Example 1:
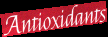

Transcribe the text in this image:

Antioxidants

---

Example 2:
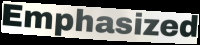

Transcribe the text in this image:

Emphasized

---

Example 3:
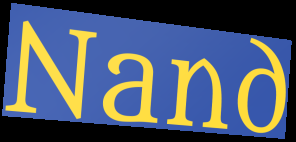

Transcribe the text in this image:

Nand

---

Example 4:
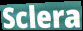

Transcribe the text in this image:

Sclera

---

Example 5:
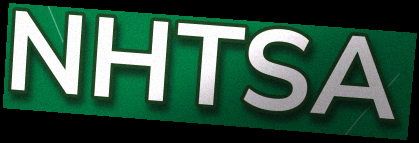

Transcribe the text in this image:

NHTSA